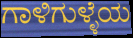
ಗಾಳಿಗುಳ್ಳೆಯ